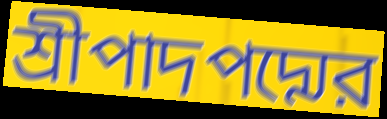
শ্রীপাদপদ্মের